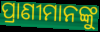
ପ୍ରାଣୀମାନଙ୍କୁ